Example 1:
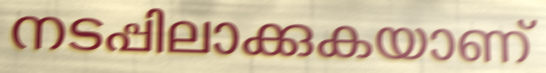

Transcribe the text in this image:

നടപ്പിലാക്കുകയാണ്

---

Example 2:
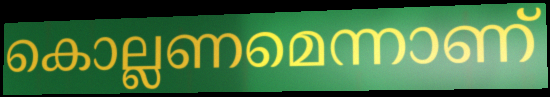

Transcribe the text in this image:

കൊല്ലണമെന്നാണ്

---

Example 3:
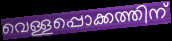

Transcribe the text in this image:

വെള്ളപ്പൊക്കത്തിന്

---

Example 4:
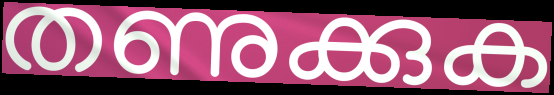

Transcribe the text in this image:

തണുക്കുക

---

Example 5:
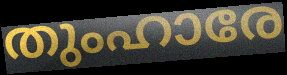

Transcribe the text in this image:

തുംഹാരേ